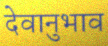
देवानुभाव